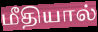
மீதியால்